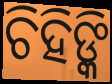
ଚିହିଙ୍କି